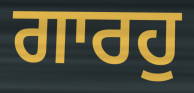
ਗਾਰਹੁ